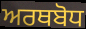
ਅਰਥਬੋਧ